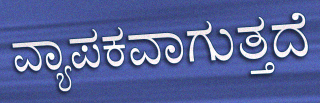
ವ್ಯಾಪಕವಾಗುತ್ತದೆ